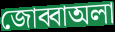
জোব্বাঅলা